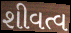
શીવત્વ